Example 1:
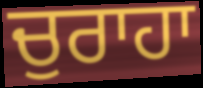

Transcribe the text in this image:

ਚੁਰਾਹਾ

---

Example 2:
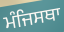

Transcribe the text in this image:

ਮੰਜਿਸਥਾ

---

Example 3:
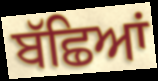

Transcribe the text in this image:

ਬੱਛਿਆਂ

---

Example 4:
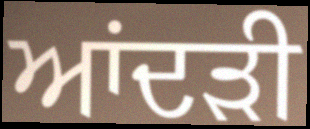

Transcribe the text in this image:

ਆਂਦੜੀ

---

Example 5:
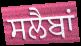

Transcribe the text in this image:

ਸਲੈਬਾਂ